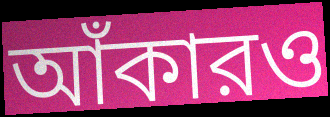
আঁকারও